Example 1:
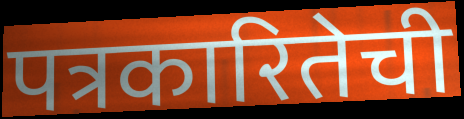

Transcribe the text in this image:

पत्रकारितेची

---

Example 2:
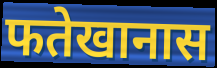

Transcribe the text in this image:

फतेखानास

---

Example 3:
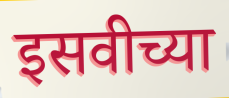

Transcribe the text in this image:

इसवीच्या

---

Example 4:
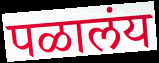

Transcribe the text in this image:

पळालंय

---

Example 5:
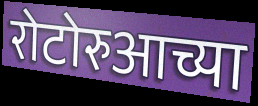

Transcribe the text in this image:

रोटोरुआच्या